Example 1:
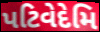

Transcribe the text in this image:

પટિવેદેમિ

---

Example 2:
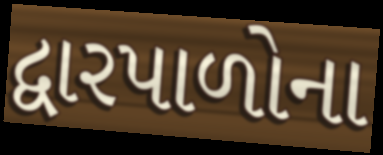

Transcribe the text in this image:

દ્વારપાળોના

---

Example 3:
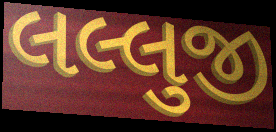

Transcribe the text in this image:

લલ્લુજી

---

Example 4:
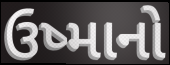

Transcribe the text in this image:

ઉષ્માનો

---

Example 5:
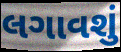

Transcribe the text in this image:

લગાવશું